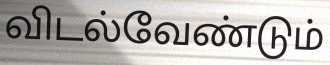
விடல்வேண்டும்